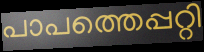
പാപത്തെപ്പറ്റി